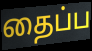
தைப்ப